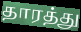
தாரத்து